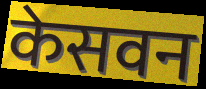
केसवन